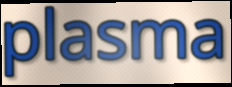
plasma